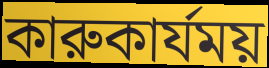
কারুকার্যময়